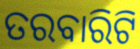
ତରବାରିଟି